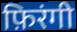
फ़िरंगी